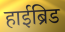
हाईब्रिड